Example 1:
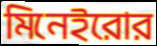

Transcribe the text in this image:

মিনেইরোর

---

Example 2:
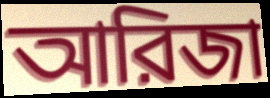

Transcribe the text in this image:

আরিজা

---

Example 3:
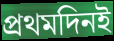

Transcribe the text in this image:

প্রথমদিনই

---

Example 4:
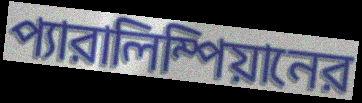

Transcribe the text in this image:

প্যারালিম্পিয়ানের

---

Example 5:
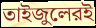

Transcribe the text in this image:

তাইজুলেরই